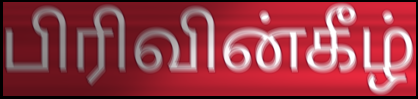
பிரிவின்கீழ்